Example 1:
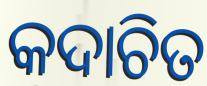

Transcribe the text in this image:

କଦାଚିତ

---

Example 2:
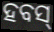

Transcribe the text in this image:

ହବସ୍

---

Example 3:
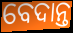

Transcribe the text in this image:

ବେଦାନ୍ତ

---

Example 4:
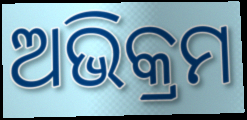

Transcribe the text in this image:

ଅଭିକ୍ରମ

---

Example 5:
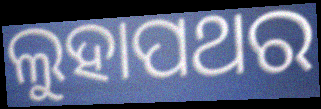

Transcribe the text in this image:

ଲୁହାପଥର